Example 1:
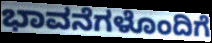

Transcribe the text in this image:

ಭಾವನೆಗಳೊಂದಿಗೆ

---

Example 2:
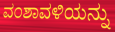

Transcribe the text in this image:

ವಂಶಾವಳಿಯನ್ನು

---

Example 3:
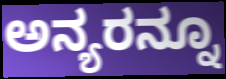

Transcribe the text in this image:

ಅನ್ಯರನ್ನೂ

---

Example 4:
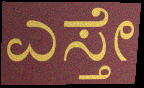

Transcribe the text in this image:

ಎಸ್ತೇ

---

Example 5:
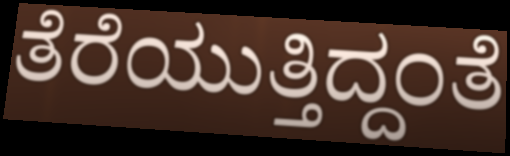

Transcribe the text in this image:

ತೆರೆಯುತ್ತಿದ್ದಂತೆ